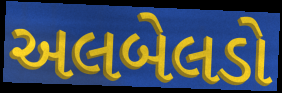
અલબેલડો